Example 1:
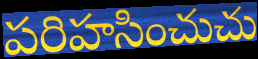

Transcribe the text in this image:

పరిహసించుచు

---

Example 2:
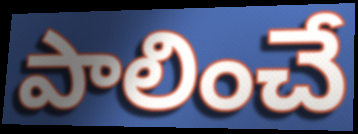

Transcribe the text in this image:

పాలించే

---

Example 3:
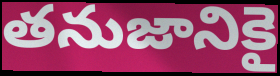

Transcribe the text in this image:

తనుజానికై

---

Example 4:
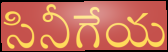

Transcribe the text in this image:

సినీగేయ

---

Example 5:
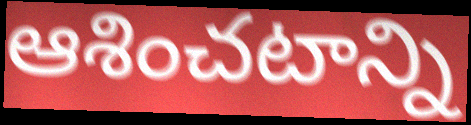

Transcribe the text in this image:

ఆశించటాన్ని